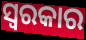
ସ୍ୱରକାର